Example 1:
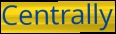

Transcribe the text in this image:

Centrally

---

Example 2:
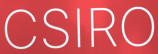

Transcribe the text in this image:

CSIRO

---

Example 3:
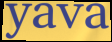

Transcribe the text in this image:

yava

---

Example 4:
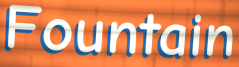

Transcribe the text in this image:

Fountain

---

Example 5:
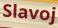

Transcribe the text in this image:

Slavoj